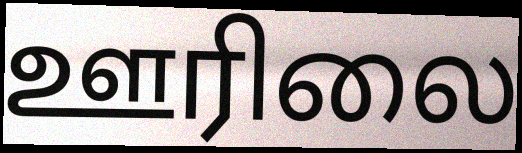
ஊரிலை